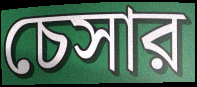
চেসার